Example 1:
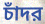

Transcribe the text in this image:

চাঁদর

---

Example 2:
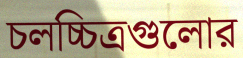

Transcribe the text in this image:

চলচ্চিত্রগুলোর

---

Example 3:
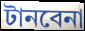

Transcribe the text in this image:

টানবেনা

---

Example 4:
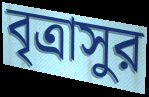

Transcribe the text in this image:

বৃত্রাসুর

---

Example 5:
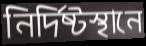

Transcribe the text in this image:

নির্দিষ্টস্থানে